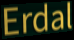
Erdal